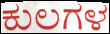
ಕುಲಗಳ